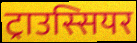
ट्राउस्सियर